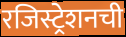
रजिस्ट्रेशनची